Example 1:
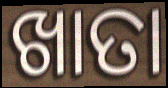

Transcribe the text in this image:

ଖାତା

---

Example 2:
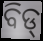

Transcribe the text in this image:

ବିଡ୍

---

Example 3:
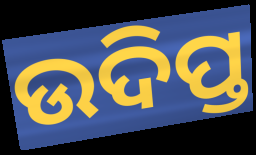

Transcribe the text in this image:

ଉଦିପ୍ତ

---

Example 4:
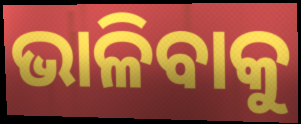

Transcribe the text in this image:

ଭାଳିବାକୁ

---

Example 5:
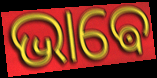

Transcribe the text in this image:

ଭାଵେ